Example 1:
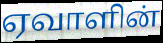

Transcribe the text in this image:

ஏவாளின்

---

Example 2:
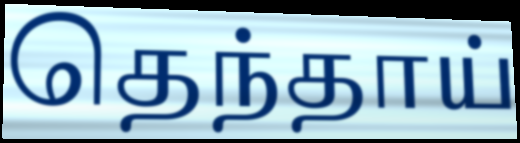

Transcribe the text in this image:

தெந்தாய்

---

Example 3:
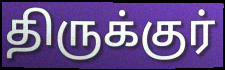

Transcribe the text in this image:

திருக்குர்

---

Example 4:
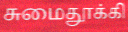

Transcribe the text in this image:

சுமைதூக்கி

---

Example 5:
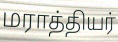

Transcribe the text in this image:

மராத்தியர்